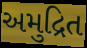
અમુદ્રિત